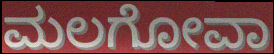
ಮಲಗೋವಾ